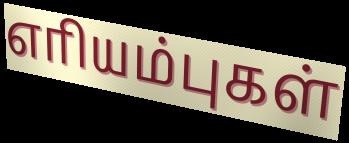
எரியம்புகள்